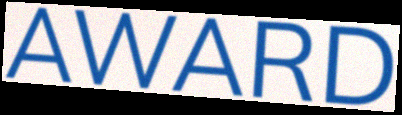
AWARD